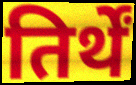
तिर्थें